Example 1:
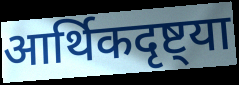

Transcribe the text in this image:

आर्थिकदृष्ट्या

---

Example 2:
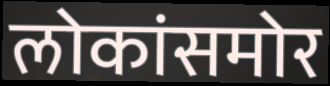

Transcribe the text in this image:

लोकांसमोर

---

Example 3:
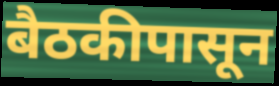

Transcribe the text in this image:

बैठकीपासून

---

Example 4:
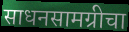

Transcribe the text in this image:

साधनसामग्रीचा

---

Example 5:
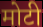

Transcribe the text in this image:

मोटी